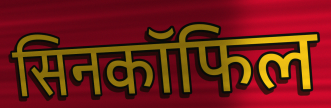
सिनकॉफिल